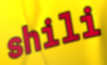
shili